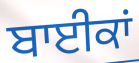
ਬਾਈਕਾਂ